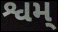
શ્વમ્